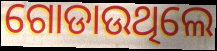
ଗୋଡାଉଥିଲେ